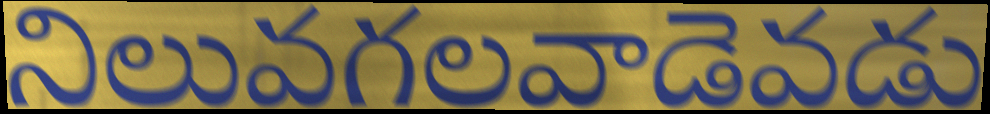
నిలువగలవాడెవడు